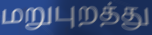
மறுபுறத்து